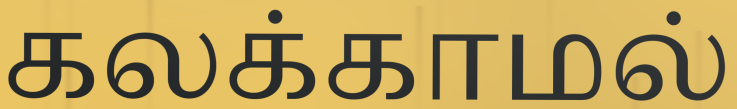
கலக்காமல்